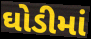
ઘોડીમાં